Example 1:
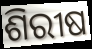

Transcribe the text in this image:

ଶିରୀଷ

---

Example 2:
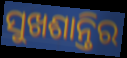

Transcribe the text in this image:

ସୁଖଶାନ୍ତିର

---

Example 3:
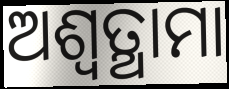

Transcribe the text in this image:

ଅଶ୍ଵତ୍ଥାମା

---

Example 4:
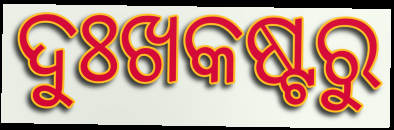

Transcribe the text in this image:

ଦୁଃଖକଷ୍ଟରୁ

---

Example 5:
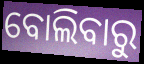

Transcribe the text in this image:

ବୋଲିବାରୁ